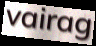
vairag